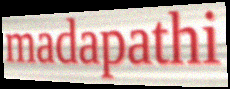
madapathi